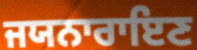
ਜਯਨਾਰਾਇਣ